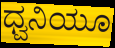
ಧ್ವನಿಯೂ